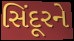
સિંદૂરને